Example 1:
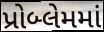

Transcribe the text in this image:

પ્રોબ્લેમમાં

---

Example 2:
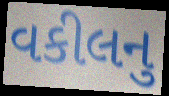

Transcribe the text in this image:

વકીલનુ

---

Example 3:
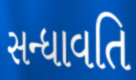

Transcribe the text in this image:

સન્ધાવતિ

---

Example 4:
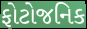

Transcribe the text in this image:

ફોટોજનિક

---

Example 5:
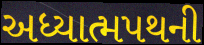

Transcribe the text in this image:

અધ્યાત્મપથની